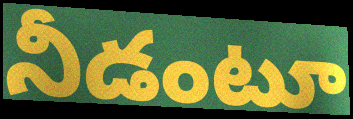
నీడంటూ